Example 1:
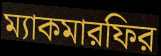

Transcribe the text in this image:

ম্যাকমারফির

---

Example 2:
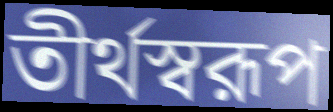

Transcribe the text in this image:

তীর্থস্বরূপ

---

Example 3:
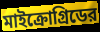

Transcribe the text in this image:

মাইক্রোগ্রিডের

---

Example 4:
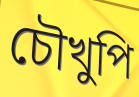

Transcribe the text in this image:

চৌখুপি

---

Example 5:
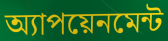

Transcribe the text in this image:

অ্যাপয়েনমেন্ট